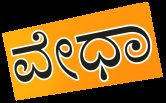
ವೇಧಾ